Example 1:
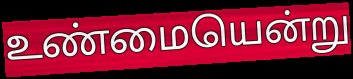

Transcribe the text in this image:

உண்மையென்று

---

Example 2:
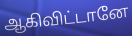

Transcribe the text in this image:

ஆகிவிட்டானே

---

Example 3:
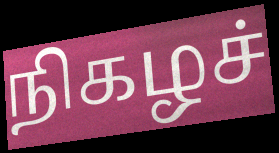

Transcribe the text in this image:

நிகழச்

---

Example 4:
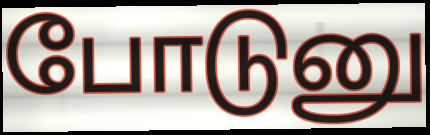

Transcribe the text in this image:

போடுனு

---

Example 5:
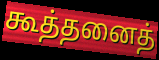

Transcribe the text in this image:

கூத்தனைத்